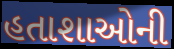
હતાશાઓની